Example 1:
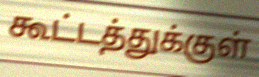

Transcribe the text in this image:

கூட்டத்துக்குள்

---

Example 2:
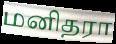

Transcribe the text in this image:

மனிதரா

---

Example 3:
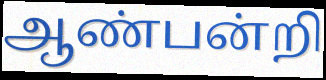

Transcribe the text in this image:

ஆண்பன்றி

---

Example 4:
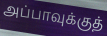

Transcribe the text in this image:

அப்பாவுக்குத்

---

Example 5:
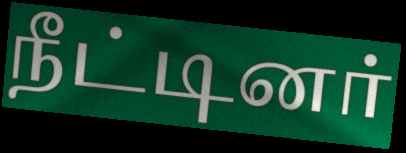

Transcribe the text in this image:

நீட்டினர்